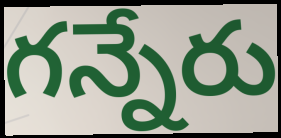
గన్నేరు